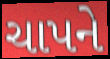
ચાપને